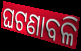
ଘଟଣାବଳି